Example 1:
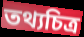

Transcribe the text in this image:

তথ্যচিত্ৰ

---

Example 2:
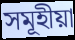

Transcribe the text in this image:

সমূহীয়া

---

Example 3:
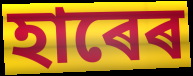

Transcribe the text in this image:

হাৰেৰ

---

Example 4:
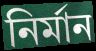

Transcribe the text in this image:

নিৰ্মান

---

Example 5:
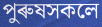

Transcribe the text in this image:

পুৰুষসকলে